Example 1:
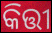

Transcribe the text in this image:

କିତ୍ତୀ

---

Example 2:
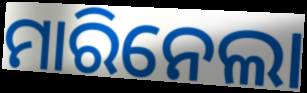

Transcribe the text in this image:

ମାରିନେଲା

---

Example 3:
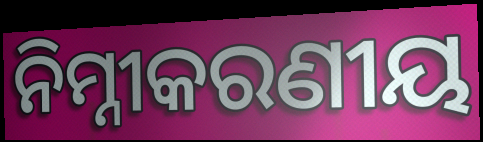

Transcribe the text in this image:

ନିମ୍ନୀକରଣୀୟ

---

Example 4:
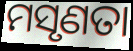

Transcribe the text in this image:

ମସୃଣତା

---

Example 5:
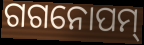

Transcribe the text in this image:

ଗଗନୋପମ୍